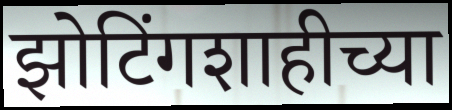
झोटिंगशाहीच्या